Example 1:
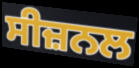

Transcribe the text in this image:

ਸੀਜ਼ਨਲ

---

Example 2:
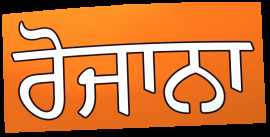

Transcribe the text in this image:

ਰੋਜਾਨਾ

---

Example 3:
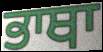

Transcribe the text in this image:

ਭਾਥਾ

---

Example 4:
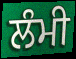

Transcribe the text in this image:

ਲੰਮੀ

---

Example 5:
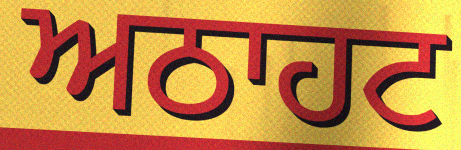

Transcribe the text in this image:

ਅਠਾਹਟ